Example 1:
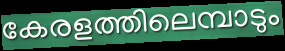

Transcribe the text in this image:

കേരളത്തിലെമ്പാടും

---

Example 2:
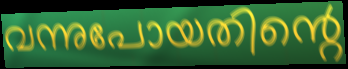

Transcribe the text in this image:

വന്നുപോയതിന്റെ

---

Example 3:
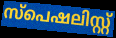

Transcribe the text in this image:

സ്പെഷലിസ്റ്റ്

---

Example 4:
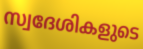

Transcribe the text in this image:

സ്വദേശികളുടെ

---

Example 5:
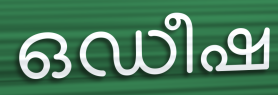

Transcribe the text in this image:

ഒഡീഷ